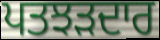
ਪਤਝੜਦਾਰ